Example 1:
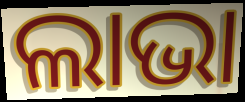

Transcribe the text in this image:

ଲାଭା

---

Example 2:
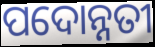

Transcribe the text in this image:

ପଦୋନ୍ନତୀ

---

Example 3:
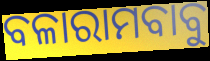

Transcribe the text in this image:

ବଳାରାମବାବୁ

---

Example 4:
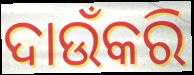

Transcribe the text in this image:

ଦାଉଁକରି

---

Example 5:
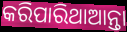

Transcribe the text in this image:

କରିପାରିଥାଆନ୍ତା